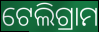
ଟେଲିଗ୍ରାମ